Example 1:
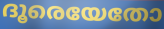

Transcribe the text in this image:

ദൂരെയേതോ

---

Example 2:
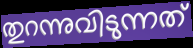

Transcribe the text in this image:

തുറന്നുവിടുന്നത്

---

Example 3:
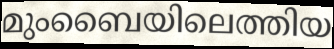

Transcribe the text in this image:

മുംബൈയിലെത്തിയ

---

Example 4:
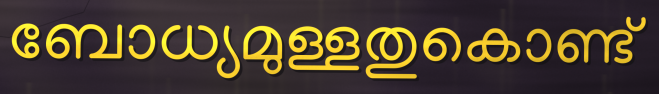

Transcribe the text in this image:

ബോധ്യമുള്ളതുകൊണ്ട്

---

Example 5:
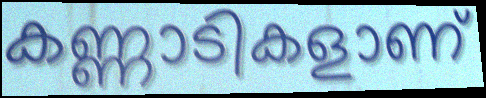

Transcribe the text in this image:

കണ്ണാടികളാണ്